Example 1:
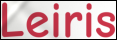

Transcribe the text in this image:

Leiris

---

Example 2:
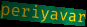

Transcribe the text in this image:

periyavar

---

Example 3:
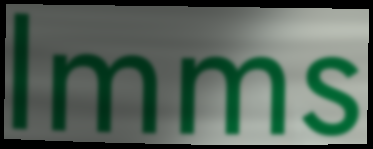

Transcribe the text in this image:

Imms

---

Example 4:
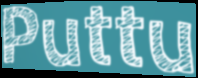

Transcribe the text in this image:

Puttu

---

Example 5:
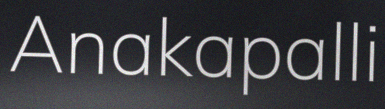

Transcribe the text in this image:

Anakapalli